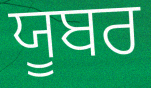
ਯੂਬਰ